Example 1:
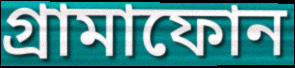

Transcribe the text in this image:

গ্রামাফোন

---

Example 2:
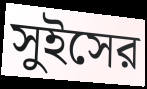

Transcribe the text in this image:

সুইসের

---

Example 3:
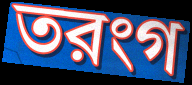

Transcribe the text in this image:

তরংগ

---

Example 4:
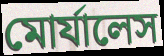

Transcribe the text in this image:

মোর্যালেস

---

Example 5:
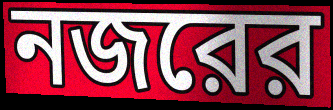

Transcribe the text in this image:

নজরের